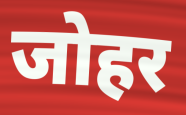
जोहर